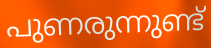
പുണരുന്നുണ്ട്